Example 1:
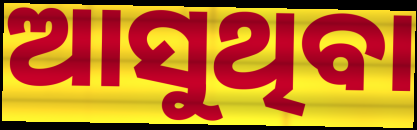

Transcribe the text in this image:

ଆସୁଥିବା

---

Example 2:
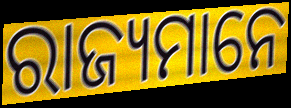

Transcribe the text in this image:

ରାଜ୍ୟମାନେ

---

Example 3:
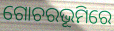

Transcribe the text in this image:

ଗୋଚରଭୂମିରେ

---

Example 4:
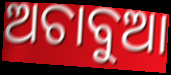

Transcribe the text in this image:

ଅଚାବୁଆ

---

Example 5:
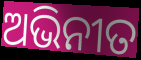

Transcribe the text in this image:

ଅଭିନୀତ